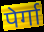
पेर्गा